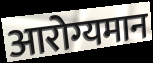
आरोग्यमान